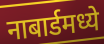
नाबार्डमध्ये